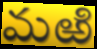
మఱి